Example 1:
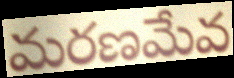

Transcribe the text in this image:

మరణమేవ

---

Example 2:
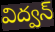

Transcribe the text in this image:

విద్వన్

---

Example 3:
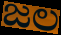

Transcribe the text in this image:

జల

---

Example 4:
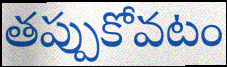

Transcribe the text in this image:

తప్పుకోవటం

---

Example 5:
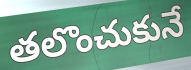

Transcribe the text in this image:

తలొంచుకునే